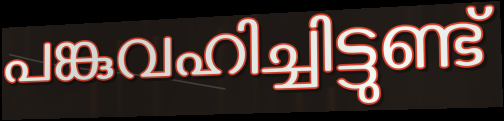
പങ്കുവഹിച്ചിട്ടുണ്ട്